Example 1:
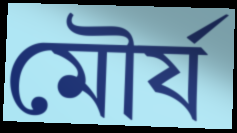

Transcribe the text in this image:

মৌর্য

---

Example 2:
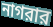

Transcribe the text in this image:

নাগরার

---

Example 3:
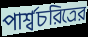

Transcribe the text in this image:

পার্শ্বচরিত্রের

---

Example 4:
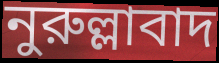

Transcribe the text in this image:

নুরুল্লাবাদ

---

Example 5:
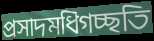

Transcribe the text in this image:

প্রসাদমধিগচ্ছতি